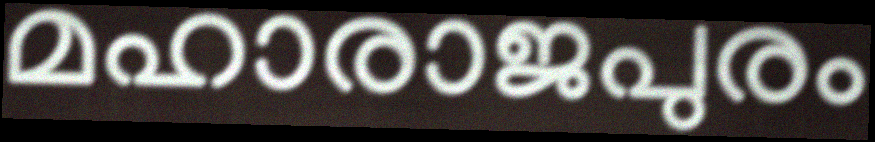
മഹാരാജപുരം